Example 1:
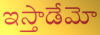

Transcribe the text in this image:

ఇస్తాడేమో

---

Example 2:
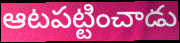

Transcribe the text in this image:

ఆటపట్టించాడు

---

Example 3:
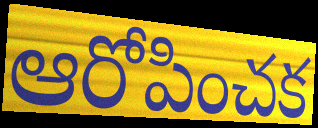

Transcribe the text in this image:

ఆరోపించక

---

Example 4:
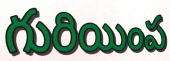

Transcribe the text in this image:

గురియింప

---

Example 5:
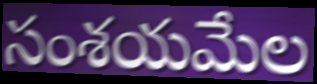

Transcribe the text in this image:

సంశయమేల